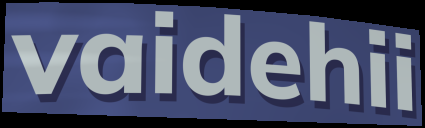
vaidehii